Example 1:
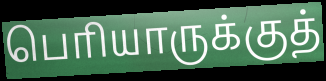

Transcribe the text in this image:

பெரியாருக்குத்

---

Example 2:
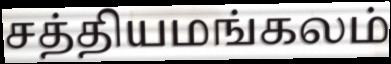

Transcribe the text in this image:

சத்தியமங்கலம்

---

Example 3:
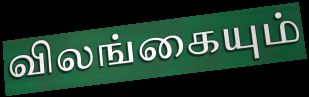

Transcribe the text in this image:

விலங்கையும்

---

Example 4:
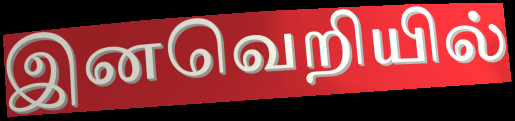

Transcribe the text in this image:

இனவெறியில்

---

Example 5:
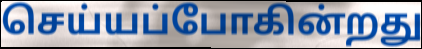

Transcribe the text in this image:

செய்யப்போகின்றது